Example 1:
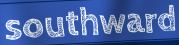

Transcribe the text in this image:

southward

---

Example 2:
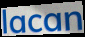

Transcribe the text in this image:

lacan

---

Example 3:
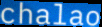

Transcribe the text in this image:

chalao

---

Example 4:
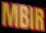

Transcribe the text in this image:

MBIR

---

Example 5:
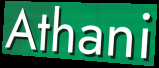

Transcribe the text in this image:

Athani